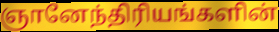
ஞானேந்திரியங்களின்